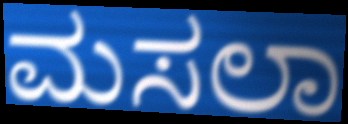
ಮಸಲಾ